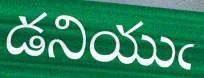
డనియుఁ